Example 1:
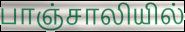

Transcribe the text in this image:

பாஞ்சாலியில்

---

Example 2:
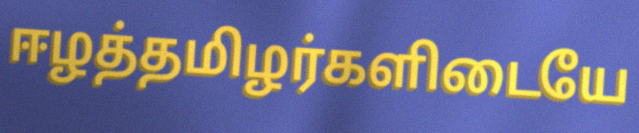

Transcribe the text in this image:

ஈழத்தமிழர்களிடையே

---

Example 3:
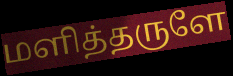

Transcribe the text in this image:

மளித்தருளே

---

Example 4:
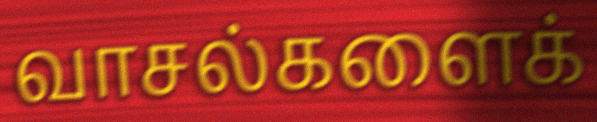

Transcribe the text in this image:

வாசல்களைக்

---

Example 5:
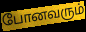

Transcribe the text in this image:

போனவரும்